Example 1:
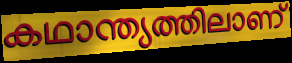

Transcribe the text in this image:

കഥാന്ത്യത്തിലാണ്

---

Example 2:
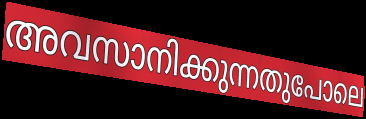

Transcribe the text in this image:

അവസാനിക്കുന്നതുപോലെ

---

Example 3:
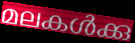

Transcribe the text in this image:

മലകൾക്കു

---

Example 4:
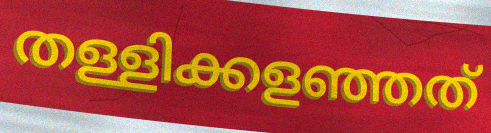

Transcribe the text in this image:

തള്ളിക്കളഞ്ഞത്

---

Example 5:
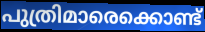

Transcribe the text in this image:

പുത്രിമാരെക്കൊണ്ട്